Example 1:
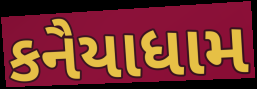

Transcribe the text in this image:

કનૈયાધામ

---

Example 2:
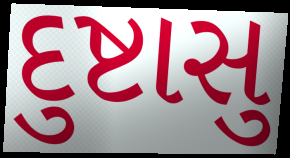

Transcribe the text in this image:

દુષ્ટાસુ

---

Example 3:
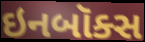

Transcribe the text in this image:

ઇનબૉક્સ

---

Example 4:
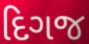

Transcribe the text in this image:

દિગજ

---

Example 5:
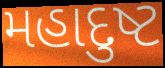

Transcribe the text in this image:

મહાદુષ્ટ